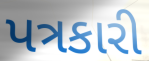
પત્રકારી